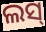
ଲସ୍